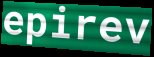
epirev